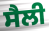
ਸੈਲੀ